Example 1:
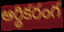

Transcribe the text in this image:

ఆర్థికరంగ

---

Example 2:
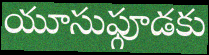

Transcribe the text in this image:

యూసుఫ్గూడకు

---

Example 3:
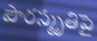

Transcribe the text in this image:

పౌరస్మృతిపై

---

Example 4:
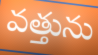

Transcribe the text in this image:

వత్తును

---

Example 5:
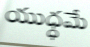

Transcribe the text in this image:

యుధ్ధమే